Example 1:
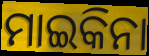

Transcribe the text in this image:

ମାଇକିନା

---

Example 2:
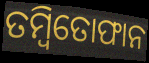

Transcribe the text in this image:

ତମ୍ବିତୋଫାନ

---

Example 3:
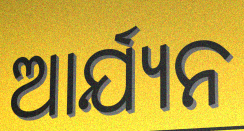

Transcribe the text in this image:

ଆର୍ଯ୍ୟନ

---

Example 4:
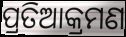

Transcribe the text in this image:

ପ୍ରତିଆକ୍ରମଣ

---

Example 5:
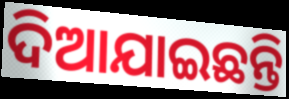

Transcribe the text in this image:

ଦିଆଯାଇଛନ୍ତି